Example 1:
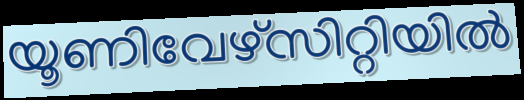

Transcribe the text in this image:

യൂണിവേഴ്സിറ്റിയിൽ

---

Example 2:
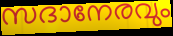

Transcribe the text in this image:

സദാനേരവും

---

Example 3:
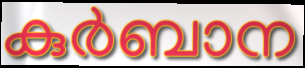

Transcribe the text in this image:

കുർബാന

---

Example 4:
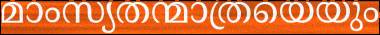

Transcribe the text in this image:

മാംസ്യതന്മാത്രയെയും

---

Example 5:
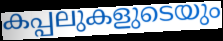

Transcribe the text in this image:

കപ്പലുകളുടെയും